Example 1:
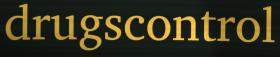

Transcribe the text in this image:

drugscontrol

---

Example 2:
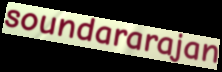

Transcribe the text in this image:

soundararajan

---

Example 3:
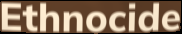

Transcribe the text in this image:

Ethnocide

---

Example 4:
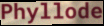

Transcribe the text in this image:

Phyllode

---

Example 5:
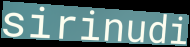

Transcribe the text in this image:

sirinudi